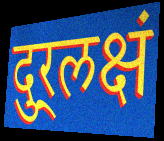
दुर्लक्षं